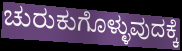
ಚುರುಕುಗೊಳ್ಳುವುದಕ್ಕೆ